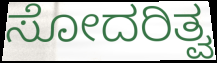
ಸೋದರಿತ್ವ